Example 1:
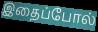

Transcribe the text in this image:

இதைப்போல்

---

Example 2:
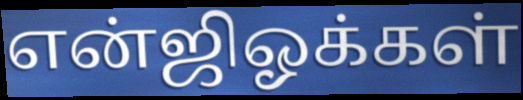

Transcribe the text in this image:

என்ஜிஓக்கள்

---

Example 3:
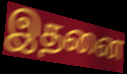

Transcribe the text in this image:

இதனை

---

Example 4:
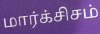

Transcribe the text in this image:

மார்க்சிசம்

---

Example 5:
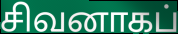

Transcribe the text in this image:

சிவனாகப்